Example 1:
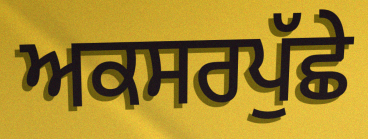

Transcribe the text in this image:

ਅਕਸਰਪੁੱਛੇ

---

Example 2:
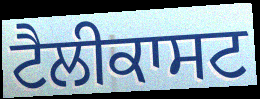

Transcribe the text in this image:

ਟੈਲੀਕਾਸਟ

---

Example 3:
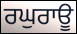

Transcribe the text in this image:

ਰਘੁਰਾਊ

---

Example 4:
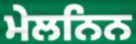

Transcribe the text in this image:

ਮੇਲਨਿਨ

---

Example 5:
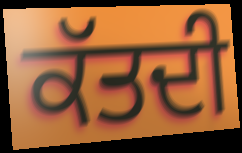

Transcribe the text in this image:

ਕੱਤਦੀ